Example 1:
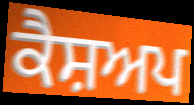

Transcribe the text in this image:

ਕੈਸ਼ਅਪ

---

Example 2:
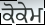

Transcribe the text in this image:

ਕੋਕੇਮ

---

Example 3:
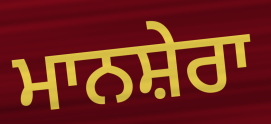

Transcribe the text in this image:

ਮਾਨਸ਼ੇਰਾ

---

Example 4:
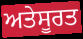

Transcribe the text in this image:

ਅਤੇਸੂਰਤ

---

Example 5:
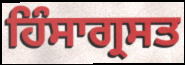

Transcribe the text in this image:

ਹਿੰਸਾਗ੍ਰਸਤ